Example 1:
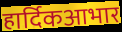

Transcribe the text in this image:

हार्दिकआभार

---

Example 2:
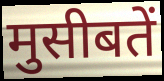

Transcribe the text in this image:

मुसीबतें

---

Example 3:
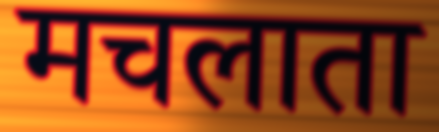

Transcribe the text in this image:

मचलाता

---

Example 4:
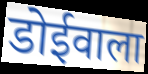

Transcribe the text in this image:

डोईवाला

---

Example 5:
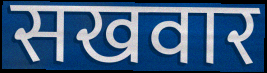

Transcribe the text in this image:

सखवार